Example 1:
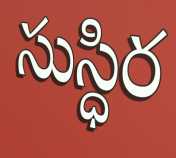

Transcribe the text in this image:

సుస్ధిర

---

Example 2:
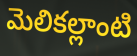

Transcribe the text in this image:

మెలికల్లాంటి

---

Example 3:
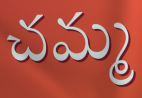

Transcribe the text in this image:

చమ్మ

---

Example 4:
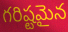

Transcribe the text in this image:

గరిష్టమైన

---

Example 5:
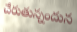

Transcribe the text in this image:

చేరుతున్నందున